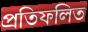
প্ৰতিফলিত